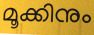
മൂക്കിനും